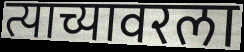
त्याच्यावरला